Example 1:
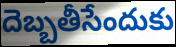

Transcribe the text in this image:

దెబ్బతీసేందుకు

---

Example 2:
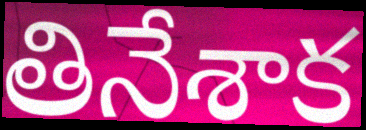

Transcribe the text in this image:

తినేశాక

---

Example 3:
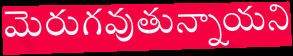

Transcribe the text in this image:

మెరుగవుతున్నాయని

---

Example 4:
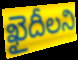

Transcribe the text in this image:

ఖైదీలని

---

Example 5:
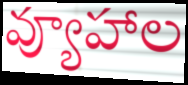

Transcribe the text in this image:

వ్యూహాల